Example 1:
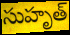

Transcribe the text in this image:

సుహృత్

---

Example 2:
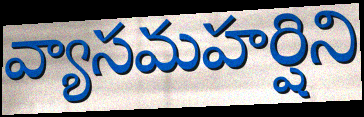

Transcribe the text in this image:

వ్యాసమహర్షిని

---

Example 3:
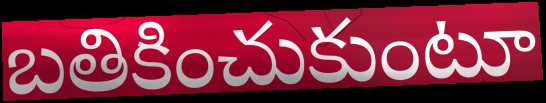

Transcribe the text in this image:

బతికించుకుంటూ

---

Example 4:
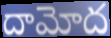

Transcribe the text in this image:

దామోద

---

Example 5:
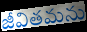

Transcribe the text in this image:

జీవితమను